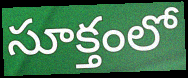
సూక్తంలో